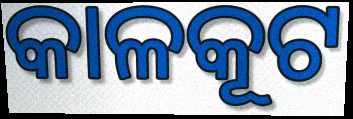
କାଳକୂଟ